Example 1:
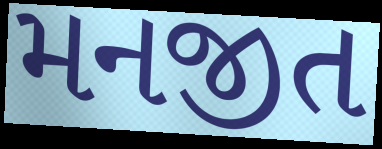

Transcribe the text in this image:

મનજીત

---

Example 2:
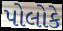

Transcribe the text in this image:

પોલોકે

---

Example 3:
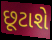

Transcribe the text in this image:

છૂટાશે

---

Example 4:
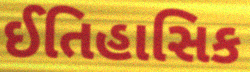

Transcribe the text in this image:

ઈતિહાસિક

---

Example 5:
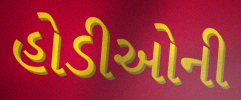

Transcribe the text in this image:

હોડીઓની